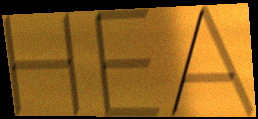
HEA